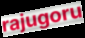
rajugoru